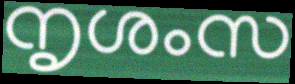
നൃശംസ